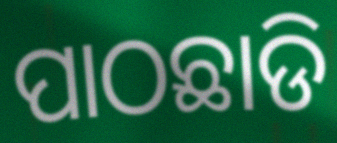
ପାଠଛାଡି